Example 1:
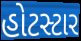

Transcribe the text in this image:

હોટસ્ટાર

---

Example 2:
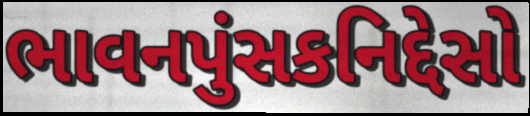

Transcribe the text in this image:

ભાવનપુંસકનિદ્દેસો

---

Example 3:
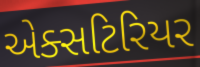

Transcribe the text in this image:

એક્સટિરિયર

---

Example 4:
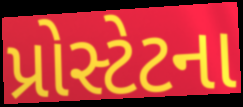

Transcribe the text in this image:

પ્રોસ્ટેટના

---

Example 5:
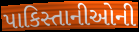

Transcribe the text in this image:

પાકિસ્તાનીઓની